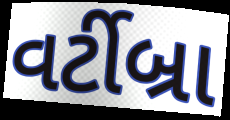
વર્ટીબ્રા